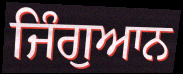
ਜਿੰਗੁਆਨ